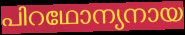
പിറഥോന്യനായ